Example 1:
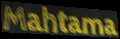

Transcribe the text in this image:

Mahtama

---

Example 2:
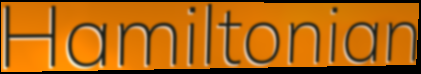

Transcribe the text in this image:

Hamiltonian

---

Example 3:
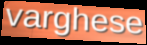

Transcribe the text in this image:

varghese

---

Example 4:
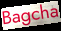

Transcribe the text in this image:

Bagcha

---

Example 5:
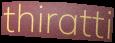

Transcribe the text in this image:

thiratti